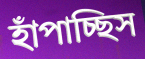
হাঁপাচ্ছিস